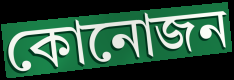
কোনোজন